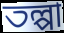
তল্পা